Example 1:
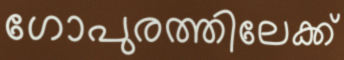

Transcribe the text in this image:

ഗോപുരത്തിലേക്ക്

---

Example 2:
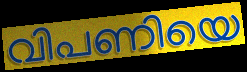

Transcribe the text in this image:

വിപണിയെ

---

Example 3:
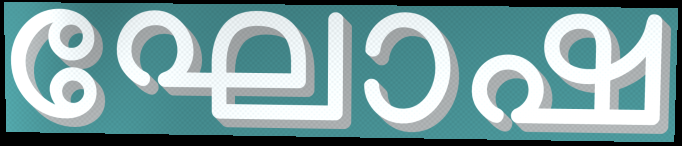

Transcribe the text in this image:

ഘോഷ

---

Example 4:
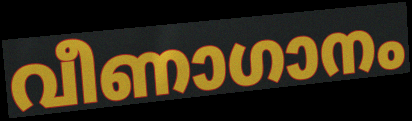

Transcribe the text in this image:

വീണാഗാനം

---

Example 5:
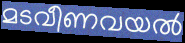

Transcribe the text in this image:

മടവീണവയൽ